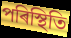
পৰিস্থিতি